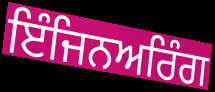
ਇੰਜਿਨਅਰਿੰਗ